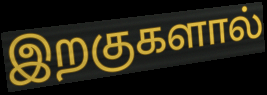
இறகுகளால்